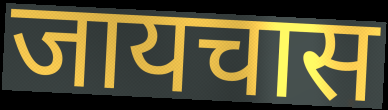
जायचास